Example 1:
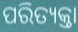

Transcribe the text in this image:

ପରିତ୍ୟକ୍ତା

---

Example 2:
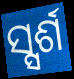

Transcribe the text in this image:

ସ୍ସର୍ଶ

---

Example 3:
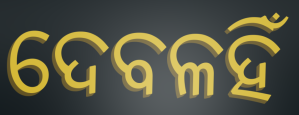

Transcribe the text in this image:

ଦେବଳହିଁ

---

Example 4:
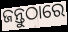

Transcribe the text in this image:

ଜନ୍ତୁଠାରେ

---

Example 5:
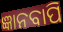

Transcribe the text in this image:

ଜ୍ଞାନବାପି